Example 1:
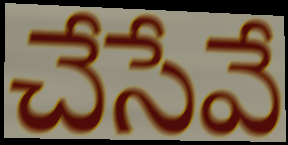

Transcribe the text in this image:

చేసేవే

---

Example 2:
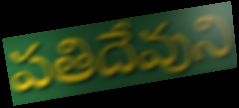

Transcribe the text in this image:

పతిదేవుని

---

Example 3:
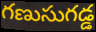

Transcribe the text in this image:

గణుసుగడ్డ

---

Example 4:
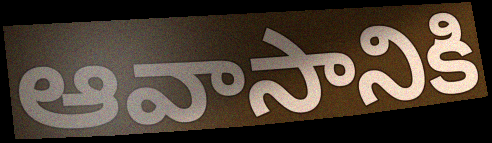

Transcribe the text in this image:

ఆవాసానికి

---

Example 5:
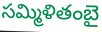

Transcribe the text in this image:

సమ్మిళితంబై